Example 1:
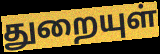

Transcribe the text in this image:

துறையுள்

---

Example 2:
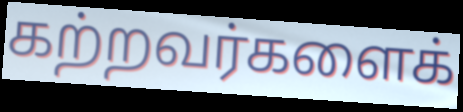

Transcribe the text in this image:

கற்றவர்களைக்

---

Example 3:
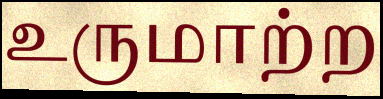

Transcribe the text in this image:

உருமாற்ற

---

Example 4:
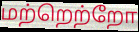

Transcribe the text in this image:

மற்றெற்றோ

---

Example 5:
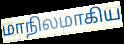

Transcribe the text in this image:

மாநிலமாகிய